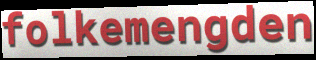
folkemengden